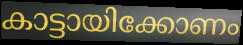
കാട്ടായിക്കോണം